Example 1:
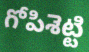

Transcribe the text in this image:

గోపిశెట్టి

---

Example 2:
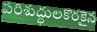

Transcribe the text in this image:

పరిశుద్ధులకొరకైన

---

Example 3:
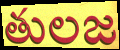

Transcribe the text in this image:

తులజ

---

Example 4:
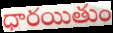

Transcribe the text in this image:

ధారయితుం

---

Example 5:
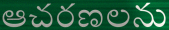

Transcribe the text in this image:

ఆచరణలను